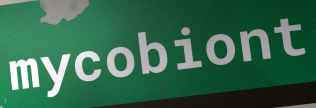
mycobiont